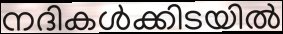
നദികൾക്കിടയിൽ